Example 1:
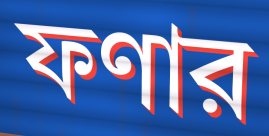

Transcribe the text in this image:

ফণার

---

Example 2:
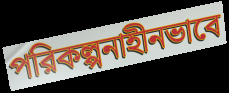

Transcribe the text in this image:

পরিকল্পনাহীনভাবে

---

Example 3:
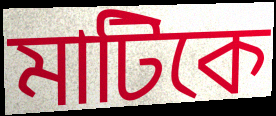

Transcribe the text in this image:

মাটিকে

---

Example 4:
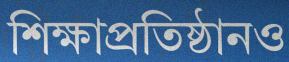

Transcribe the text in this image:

শিক্ষাপ্রতিষ্ঠানও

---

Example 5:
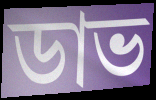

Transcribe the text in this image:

ডাভ